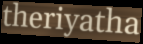
theriyatha